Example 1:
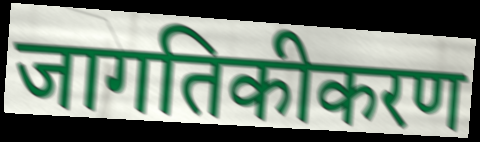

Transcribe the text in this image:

जागतिकीकरण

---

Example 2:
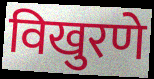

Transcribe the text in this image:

विखुरणे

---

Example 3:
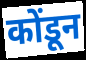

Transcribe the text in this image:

कोंडून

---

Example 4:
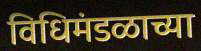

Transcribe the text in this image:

विधिमंडळाच्या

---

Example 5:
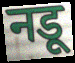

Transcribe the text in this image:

नडू